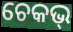
ଚେକଭ୍